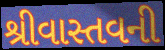
શ્રીવાસ્તવની